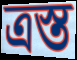
ত্রস্ত